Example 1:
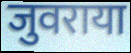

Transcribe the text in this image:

जुवराया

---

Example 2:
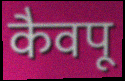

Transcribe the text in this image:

कैवपू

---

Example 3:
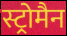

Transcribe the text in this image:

स्ट्रोमैन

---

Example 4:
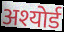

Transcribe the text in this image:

अश्योर्ड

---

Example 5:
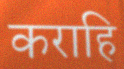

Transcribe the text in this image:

कराहि